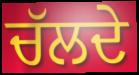
ਚੱਲਦੇ